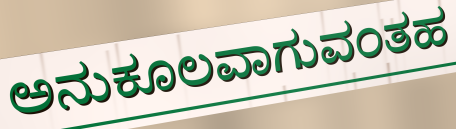
ಅನುಕೂಲವಾಗುವಂತಹ